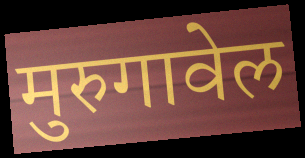
मुरुगावेल